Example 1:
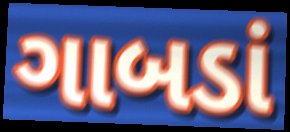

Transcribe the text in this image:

ગાબડાં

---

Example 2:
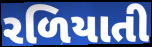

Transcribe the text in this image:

રળિયાતી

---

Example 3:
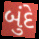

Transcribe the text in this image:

બુંદે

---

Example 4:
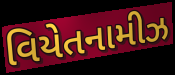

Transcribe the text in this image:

વિયેતનામીઝ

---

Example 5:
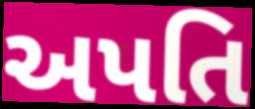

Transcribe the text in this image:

અપતિ